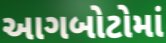
આગબોટોમાં